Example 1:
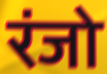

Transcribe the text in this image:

रंजो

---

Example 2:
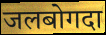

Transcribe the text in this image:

जलबोगदा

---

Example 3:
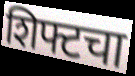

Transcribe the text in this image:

शिफ्टचा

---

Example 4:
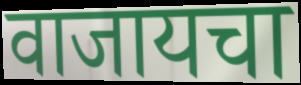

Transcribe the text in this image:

वाजायचा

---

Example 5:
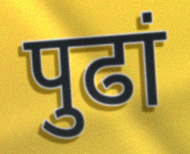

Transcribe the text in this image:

पुढां